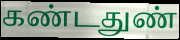
கண்டதுண்